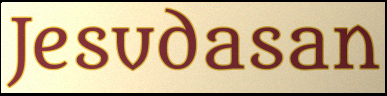
Jesudasan